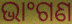
ଭାଂଗଣ